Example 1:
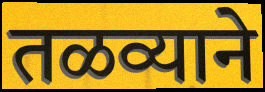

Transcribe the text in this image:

तळव्याने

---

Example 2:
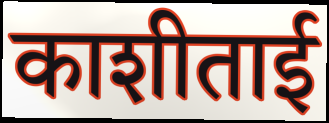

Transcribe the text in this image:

काशीताई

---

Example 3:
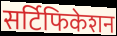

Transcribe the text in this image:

सर्टिफिकेशन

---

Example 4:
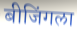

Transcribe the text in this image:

बीजिंगला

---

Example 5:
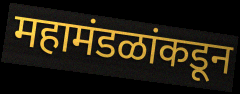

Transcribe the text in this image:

महामंडळांकडून